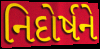
નિદોર્ષને